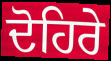
ਦੋਹਿਰੇ